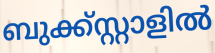
ബുക്ക്സ്റ്റാളിൽ